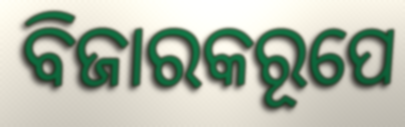
ବିଜାରକରୂପେ